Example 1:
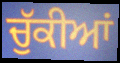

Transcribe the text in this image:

ਚੁੱਕੀਆਂ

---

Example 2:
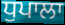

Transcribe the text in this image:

ਧੁਪਾਲਾ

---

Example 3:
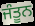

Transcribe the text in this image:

ਜੰਤੂਨ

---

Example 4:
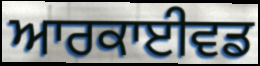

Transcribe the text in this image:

ਆਰਕਾਈਵਡ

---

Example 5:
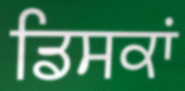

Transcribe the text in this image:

ਡਿਸਕਾਂ